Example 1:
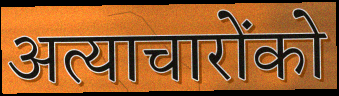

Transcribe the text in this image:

अत्याचारोंको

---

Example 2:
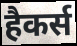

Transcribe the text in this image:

हैकर्स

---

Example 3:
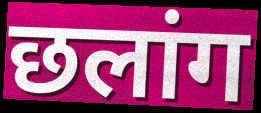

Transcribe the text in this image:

छलांग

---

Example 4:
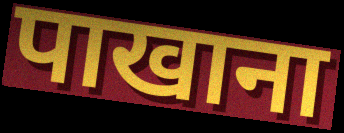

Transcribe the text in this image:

पाखाना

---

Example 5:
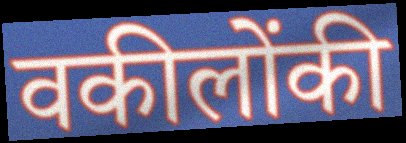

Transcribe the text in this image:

वकीलोंकी